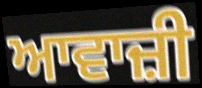
ਆਵਾਜ਼ੀ